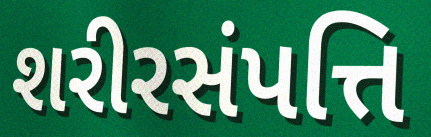
શરીરસંપત્તિ